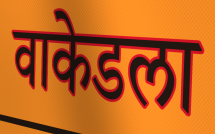
वाकेडला